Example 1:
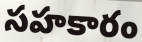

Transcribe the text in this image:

సహకారం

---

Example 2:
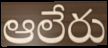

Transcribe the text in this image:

ఆలేరు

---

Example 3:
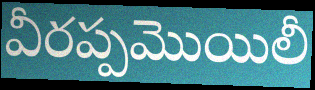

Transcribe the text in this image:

వీరప్పమొయిలీ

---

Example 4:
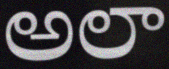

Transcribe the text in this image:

అలా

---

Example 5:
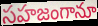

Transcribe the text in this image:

సహజంగానూ